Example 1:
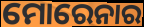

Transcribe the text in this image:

ମୋରେନାର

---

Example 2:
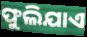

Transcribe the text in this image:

ଫୁଲିଯାଏ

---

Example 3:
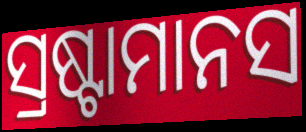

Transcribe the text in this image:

ସ୍ରଷ୍ଟାମାନସ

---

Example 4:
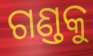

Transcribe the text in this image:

ଗଣ୍ଡକୁ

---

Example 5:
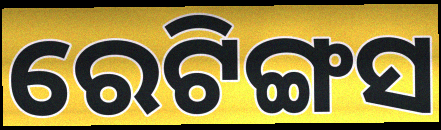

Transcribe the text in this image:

ରେଟିଙ୍ଗସ